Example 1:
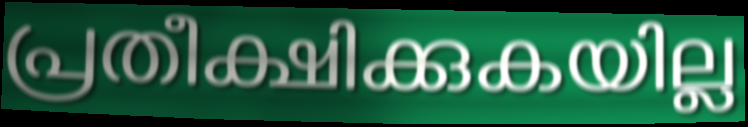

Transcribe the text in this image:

പ്രതീക്ഷിക്കുകയില്ല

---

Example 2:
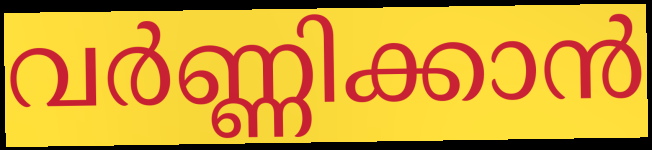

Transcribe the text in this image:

വർണ്ണിക്കാൻ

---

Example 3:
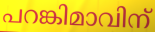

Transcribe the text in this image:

പറങ്കിമാവിന്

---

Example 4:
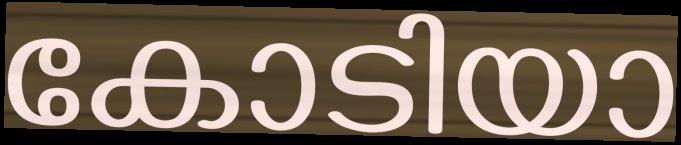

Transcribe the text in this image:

കോടിയാ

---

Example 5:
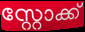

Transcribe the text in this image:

സ്റ്റോക്ക്